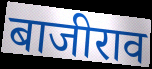
बाजीराव